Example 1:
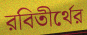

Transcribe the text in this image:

রবিতীর্থের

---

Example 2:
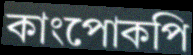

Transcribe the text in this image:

কাংপোকপি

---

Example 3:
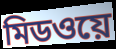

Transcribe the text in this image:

মিডওয়ে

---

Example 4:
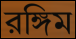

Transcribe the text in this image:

রঙ্গিম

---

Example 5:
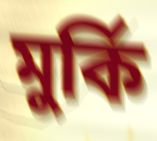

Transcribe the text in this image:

মুর্কি